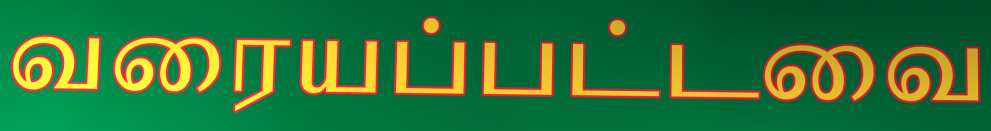
வரையப்பட்டவை